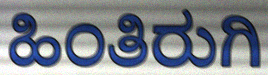
ಹಿಂತಿರುಗಿ